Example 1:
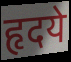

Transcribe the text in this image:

हृदये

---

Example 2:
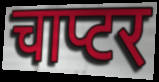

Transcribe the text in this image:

चाप्टर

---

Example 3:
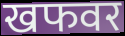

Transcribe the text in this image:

खफवर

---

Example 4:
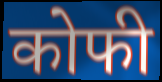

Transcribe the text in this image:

कोफी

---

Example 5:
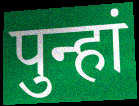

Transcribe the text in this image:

पुन्हां